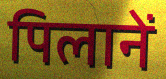
पिलानें